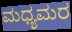
ಮಧ್ಯಮರ